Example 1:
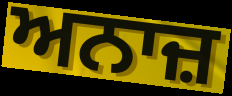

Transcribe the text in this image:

ਅਨਾਜ਼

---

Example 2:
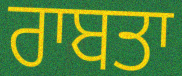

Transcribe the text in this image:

ਰਾਬਤਾ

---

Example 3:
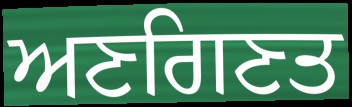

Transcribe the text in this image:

ਅਣਗਿਣਤ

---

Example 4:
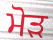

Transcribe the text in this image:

ਮੋੜ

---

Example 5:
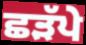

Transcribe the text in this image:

ਛੜੱਪੇ